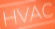
HVAC